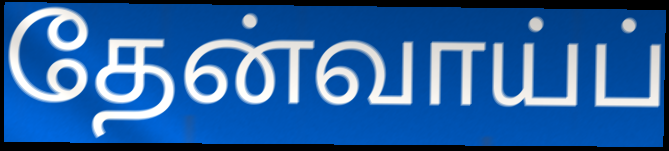
தேன்வாய்ப்